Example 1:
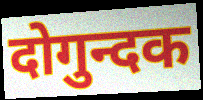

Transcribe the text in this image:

दोगुन्दक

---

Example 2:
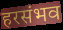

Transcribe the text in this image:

हरसंभव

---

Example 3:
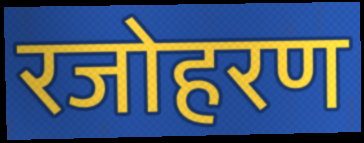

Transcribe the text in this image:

रजोहरण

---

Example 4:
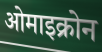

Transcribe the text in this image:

ओमाइक्रोन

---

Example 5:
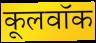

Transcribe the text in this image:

कूलवॉक